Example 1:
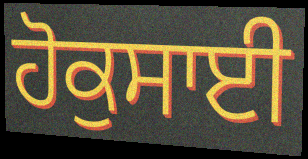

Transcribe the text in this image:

ਹੋਕੁਸਾਈ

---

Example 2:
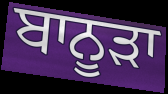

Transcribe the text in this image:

ਬਾਨੂੜਾ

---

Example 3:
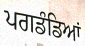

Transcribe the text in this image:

ਪਗਡੰਡਿਆਂ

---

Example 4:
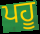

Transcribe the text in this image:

ਪਹੂ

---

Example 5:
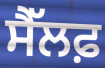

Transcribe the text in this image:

ਸੈੱਲਫ਼